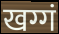
खग्गं